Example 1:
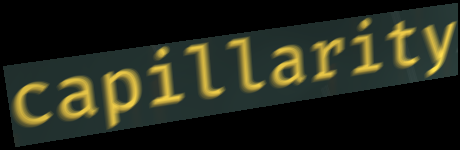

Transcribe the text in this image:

capillarity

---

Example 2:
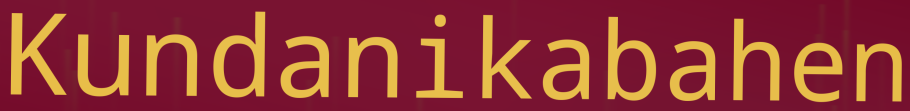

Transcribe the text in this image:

Kundanikabahen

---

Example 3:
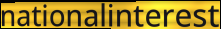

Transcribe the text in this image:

nationalinterest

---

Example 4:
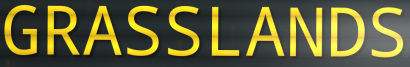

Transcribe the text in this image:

GRASSLANDS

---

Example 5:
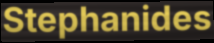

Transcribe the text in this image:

Stephanides